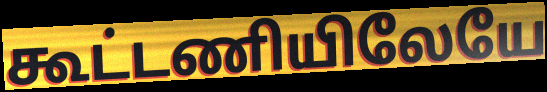
கூட்டணியிலேயே